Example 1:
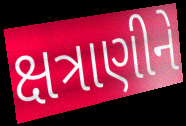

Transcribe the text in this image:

ક્ષત્રાણીને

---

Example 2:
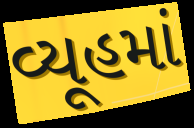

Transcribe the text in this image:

વ્યૂહમાં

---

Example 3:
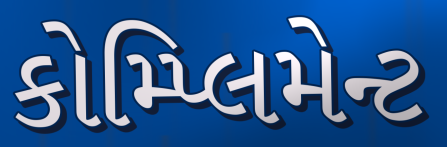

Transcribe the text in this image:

કોમ્પ્લિમેન્ટ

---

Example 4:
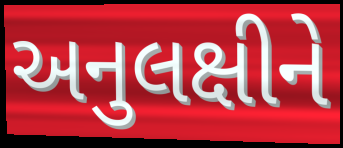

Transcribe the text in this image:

અનુલક્ષીને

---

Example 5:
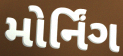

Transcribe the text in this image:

મોર્નિંગ